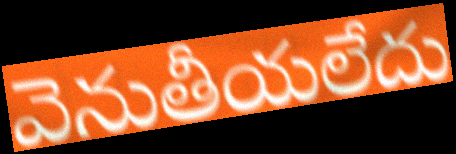
వెనుతీయలేదు